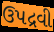
ઉપદ્રવી